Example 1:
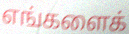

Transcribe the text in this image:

எங்களைக்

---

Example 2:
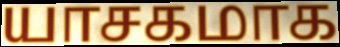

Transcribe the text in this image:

யாசகமாக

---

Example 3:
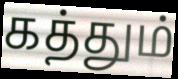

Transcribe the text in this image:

கத்தும்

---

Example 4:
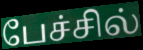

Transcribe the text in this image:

பேச்சில்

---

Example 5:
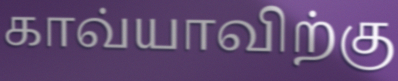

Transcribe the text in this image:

காவ்யாவிற்கு